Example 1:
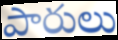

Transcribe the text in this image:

పారులు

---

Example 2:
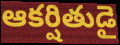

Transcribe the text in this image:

ఆకర్షితుడై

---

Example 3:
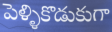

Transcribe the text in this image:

పెళ్ళికొడుకుగా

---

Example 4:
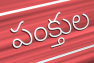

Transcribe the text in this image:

పంక్తుల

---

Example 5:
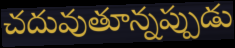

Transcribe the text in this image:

చదువుతూన్నప్పుడు